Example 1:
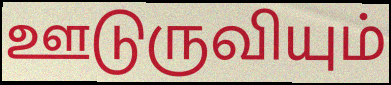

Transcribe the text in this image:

ஊடுருவியும்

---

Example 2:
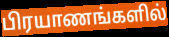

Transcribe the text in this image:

பிரயாணங்களில்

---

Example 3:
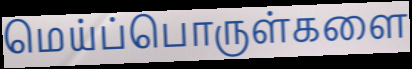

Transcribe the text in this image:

மெய்ப்பொருள்களை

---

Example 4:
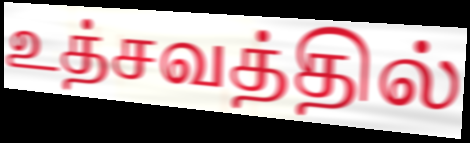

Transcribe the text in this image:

உத்சவத்தில்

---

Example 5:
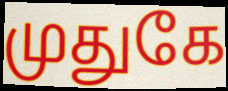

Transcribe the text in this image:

முதுகே